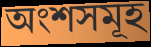
অংশসমূহ